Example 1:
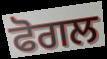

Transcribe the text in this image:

ਫੋਗਲ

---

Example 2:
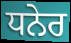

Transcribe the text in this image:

ਧਨੇਰ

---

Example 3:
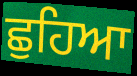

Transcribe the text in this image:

ਛੁਹਿਆ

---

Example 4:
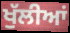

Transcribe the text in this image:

ਖੁੱਲੀਆਂ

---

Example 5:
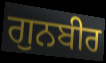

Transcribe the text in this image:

ਗੁਨਬੀਰ